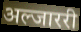
अल्जाररी